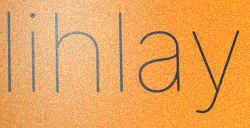
lihlay